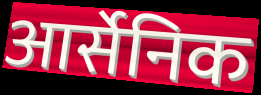
आर्सेनिक